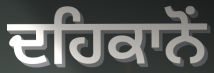
ਦਹਿਕਾਨੋਂ